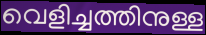
വെളിച്ചത്തിനുള്ള